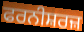
ਫਰਨੀਸ਼ਰਜ਼